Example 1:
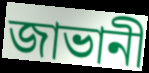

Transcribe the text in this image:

জাভানী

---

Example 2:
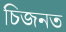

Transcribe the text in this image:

চিজনত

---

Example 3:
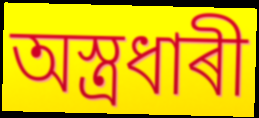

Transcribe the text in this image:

অস্ত্ৰধাৰী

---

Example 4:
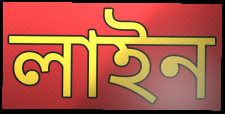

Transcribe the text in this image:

লাইন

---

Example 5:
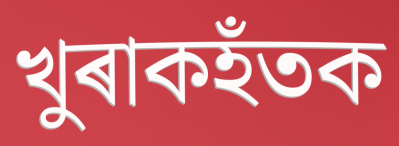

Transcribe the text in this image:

খুৰাকহঁতক